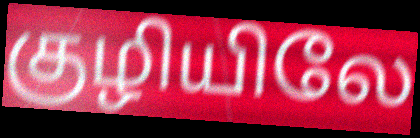
குழியிலே